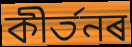
কীৰ্তনৰ